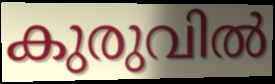
കുരുവിൽ